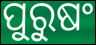
ପୁରୁଷଂ